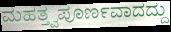
ಮಹತ್ತ್ವಪೂರ್ಣವಾದದ್ದು